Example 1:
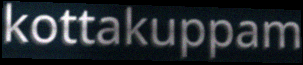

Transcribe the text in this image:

kottakuppam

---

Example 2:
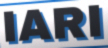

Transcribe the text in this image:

IARI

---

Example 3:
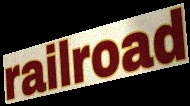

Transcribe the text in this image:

railroad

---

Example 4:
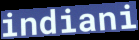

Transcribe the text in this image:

indiani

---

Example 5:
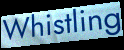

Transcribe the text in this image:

Whistling